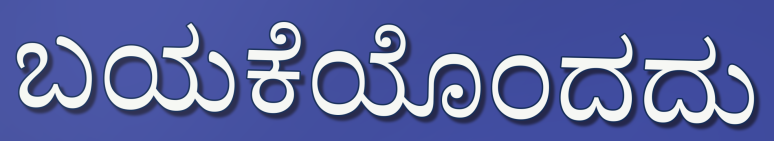
ಬಯಕೆಯೊಂದದು